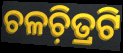
ଚଳଚ଼ିତ୍ରଟି